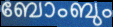
ബോംബും